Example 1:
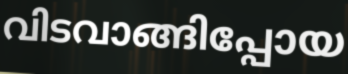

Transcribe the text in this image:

വിടവാങ്ങിപ്പോയ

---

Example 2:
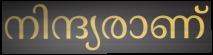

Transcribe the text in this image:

നിന്ദ്യരാണ്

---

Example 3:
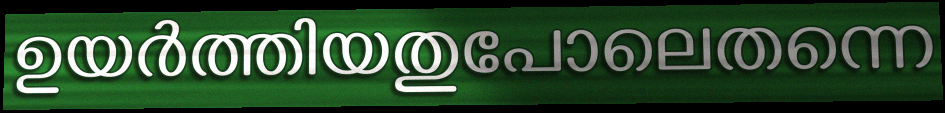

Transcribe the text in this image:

ഉയർത്തിയതുപോലെതന്നെ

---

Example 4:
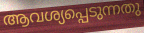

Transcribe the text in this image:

ആവശ്യപ്പെടുന്നതു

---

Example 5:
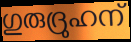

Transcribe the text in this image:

ഗുരുദ്രുഹന്